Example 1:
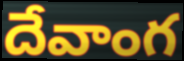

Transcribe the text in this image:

దేవాంగ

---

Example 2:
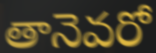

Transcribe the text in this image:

తానెవరో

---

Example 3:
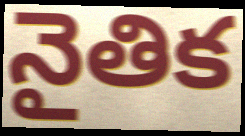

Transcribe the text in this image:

నైతిక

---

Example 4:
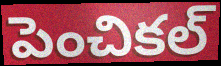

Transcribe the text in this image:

పెంచికల్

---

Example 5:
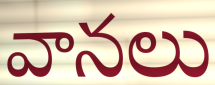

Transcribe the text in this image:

వానలు